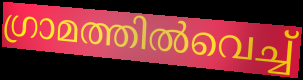
ഗ്രാമത്തിൽവെച്ച്